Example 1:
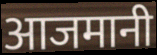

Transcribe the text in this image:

आजमानी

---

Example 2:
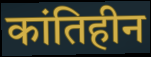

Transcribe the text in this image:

कांतिहीन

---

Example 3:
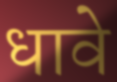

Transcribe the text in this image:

धावे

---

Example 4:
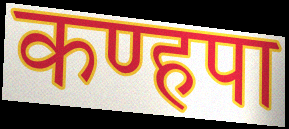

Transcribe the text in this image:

कण्हपा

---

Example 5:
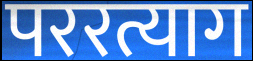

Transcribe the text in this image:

पररत्याग